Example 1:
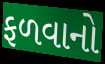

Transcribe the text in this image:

ફળવાનો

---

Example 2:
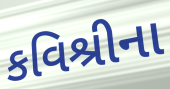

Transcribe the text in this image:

કવિશ્રીના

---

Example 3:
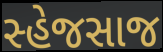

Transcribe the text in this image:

સ્હેજસાજ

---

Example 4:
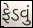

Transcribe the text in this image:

ફેડવું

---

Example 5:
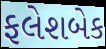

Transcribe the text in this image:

ફલેશબેક